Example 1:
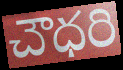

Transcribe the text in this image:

చౌధరి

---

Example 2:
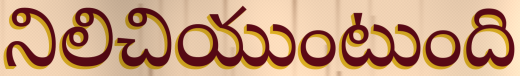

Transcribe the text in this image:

నిలిచియుంటుంది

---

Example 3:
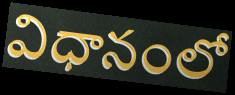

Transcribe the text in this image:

విధానంలో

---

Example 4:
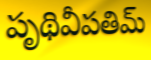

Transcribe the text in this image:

పృథివీపతిమ్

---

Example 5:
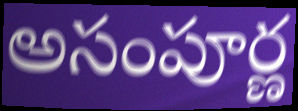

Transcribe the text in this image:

అసంపూర్ణ